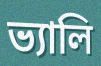
ভ্যালি